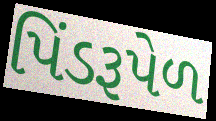
પિંડરૂપેળ